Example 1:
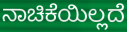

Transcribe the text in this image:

ನಾಚಿಕೆಯಿಲ್ಲದೆ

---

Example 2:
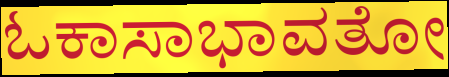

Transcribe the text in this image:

ಓಕಾಸಾಭಾವತೋ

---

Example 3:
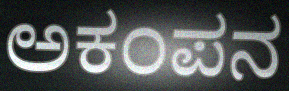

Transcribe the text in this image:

ಅಕಂಪನ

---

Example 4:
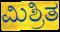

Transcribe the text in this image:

ಮಿಶ್ರಿತ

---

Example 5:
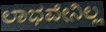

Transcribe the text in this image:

ಲಾಭವೇನಿಲ್ಲ